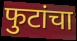
फुटांचा